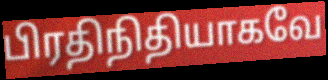
பிரதிநிதியாகவே